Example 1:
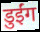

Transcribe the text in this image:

डुईंग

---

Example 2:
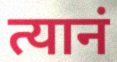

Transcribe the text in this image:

त्यानं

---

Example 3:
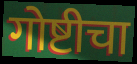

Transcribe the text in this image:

गोष्टीचा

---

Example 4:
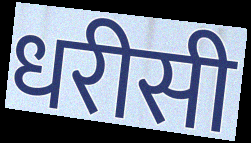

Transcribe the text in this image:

धरीसी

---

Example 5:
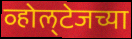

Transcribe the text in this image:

व्होल्टेजच्या